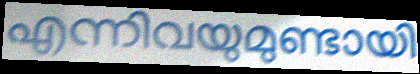
എന്നിവയുമുണ്ടായി